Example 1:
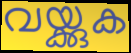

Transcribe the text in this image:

വയ്ക്കുക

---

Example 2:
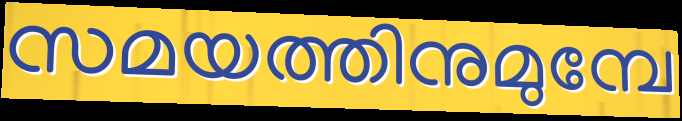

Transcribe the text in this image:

സമയത്തിനുമുമ്പേ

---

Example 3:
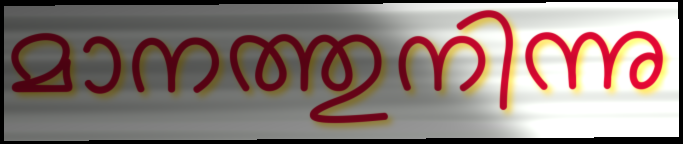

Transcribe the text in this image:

മാനത്തുനിന്നു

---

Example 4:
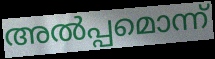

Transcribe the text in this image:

അൽപ്പമൊന്ന്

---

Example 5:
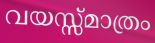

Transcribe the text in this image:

വയസ്സ്മാത്രം